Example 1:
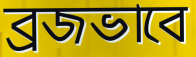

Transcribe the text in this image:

ব্রজভাবে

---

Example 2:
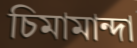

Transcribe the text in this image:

চিমামান্দা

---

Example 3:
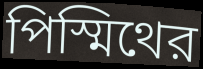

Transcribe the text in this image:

পিস্মিথের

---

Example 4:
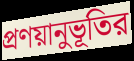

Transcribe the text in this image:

প্রণয়ানুভূতির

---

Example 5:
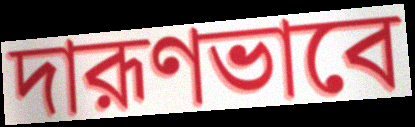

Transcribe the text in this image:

দারূণভাবে